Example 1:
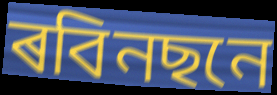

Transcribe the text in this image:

ৰবিনছনে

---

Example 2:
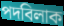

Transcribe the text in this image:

পদবিলাক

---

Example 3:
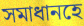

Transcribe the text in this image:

সমাধানহে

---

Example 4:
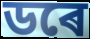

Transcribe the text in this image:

ডৰে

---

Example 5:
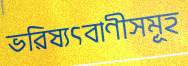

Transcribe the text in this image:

ভৱিষ্যৎবাণীসমূহ